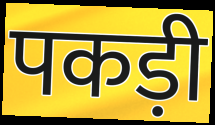
पकड़ी